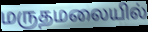
மருதமலையில்